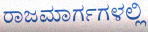
ರಾಜಮಾರ್ಗಗಳಲ್ಲಿ